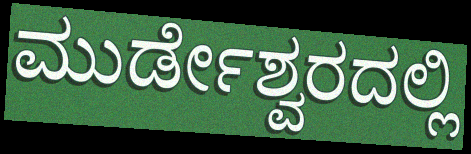
ಮುರ್ಡೇಶ್ವರದಲ್ಲಿ